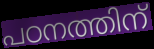
പഠനത്തിന്